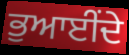
ਭੁਆਈਂਦੇ